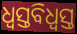
ଧ୍ୱସ୍ତବିଧ୍ୱସ୍ତ